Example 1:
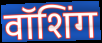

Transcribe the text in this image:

वॉशिंग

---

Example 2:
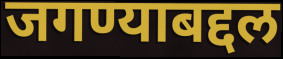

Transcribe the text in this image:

जगण्याबद्दल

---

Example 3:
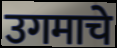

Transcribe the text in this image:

उगमाचे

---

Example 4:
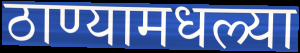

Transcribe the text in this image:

ठाण्यामधल्या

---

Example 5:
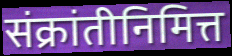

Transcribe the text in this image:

संक्रांतीनिमित्त